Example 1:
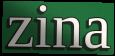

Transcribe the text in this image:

zina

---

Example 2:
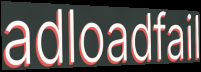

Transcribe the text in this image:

adloadfail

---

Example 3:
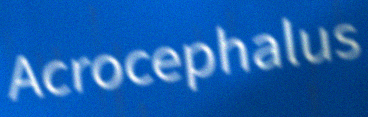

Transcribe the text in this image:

Acrocephalus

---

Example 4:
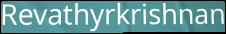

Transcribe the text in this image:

Revathyrkrishnan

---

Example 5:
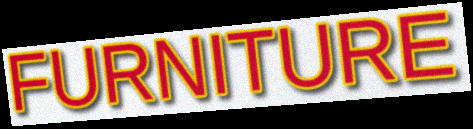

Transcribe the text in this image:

FURNITURE